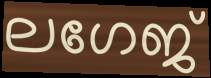
ലഗേജ്